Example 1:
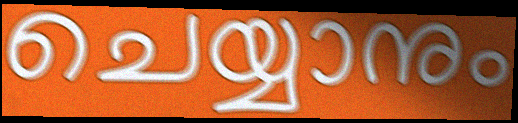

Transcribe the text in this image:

ചെയ്യാനും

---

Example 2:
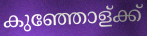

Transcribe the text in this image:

കുഞ്ഞോള്ക്ക്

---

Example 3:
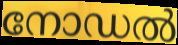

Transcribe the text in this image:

നോഡൽ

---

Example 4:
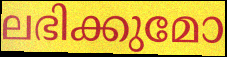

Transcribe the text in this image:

ലഭിക്കുമോ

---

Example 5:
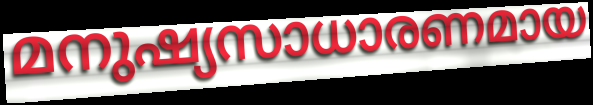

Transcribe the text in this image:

മനുഷ്യസാധാരണമായ